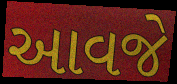
આવજે